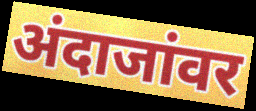
अंदाजांवर